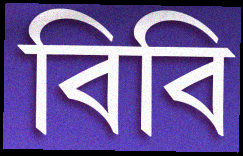
বিবি